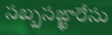
సబ్బసఙ్ఖారేసు